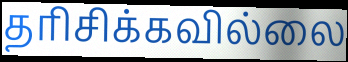
தரிசிக்கவில்லை